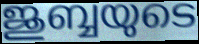
ജുബ്ബയുടെ